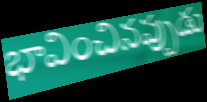
భావించినప్పుడు